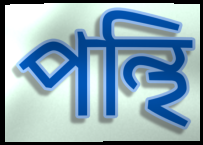
পন্থি